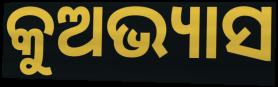
କୁଅଭ୍ୟାସ